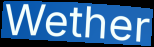
Wether